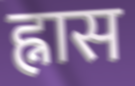
ह्नास